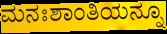
ಮನಃಶಾಂತಿಯನ್ನೂ